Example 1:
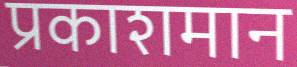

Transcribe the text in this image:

प्रकाशमान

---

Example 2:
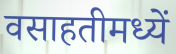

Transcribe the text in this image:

वसाहतीमध्यें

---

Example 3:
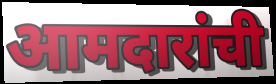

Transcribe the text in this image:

आमदारांची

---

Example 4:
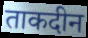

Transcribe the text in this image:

ताकदीन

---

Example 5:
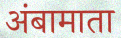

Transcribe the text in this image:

अंबामाता